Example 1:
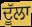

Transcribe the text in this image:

ਦੂੱਲਾ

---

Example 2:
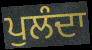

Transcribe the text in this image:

ਪੁਲੰਦਾ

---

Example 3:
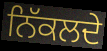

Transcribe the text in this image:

ਨਿੱਕਲਦੇ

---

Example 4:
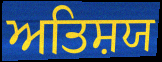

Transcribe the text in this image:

ਅਤਿਸ਼ਯ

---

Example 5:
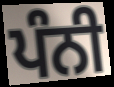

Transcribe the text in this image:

ਪੰਨੀ